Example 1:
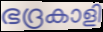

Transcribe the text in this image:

ഭദ്രകാളി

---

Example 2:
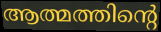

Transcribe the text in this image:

ആത്മത്തിന്റെ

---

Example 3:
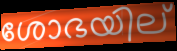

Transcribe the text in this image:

ശോഭയില്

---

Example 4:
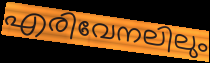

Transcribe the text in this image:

എരിവേനലിലും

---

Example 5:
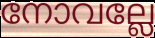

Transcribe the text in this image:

നോവല്ലേ